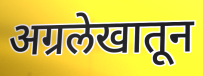
अग्रलेखातून